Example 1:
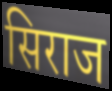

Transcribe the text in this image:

सिराज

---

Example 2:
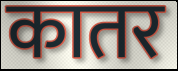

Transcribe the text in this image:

कातर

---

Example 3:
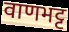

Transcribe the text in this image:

वाणभट्ट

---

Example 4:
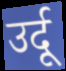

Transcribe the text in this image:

उर्दू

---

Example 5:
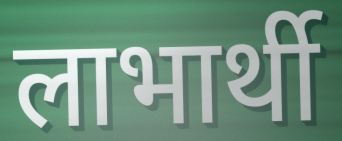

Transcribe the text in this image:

लाभार्थी